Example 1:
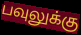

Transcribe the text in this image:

பவுலுக்கு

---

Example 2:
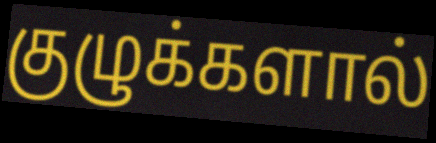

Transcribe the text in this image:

குழுக்களால்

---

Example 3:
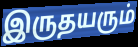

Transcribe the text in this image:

இருதயரும்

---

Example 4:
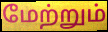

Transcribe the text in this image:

மேற்றும்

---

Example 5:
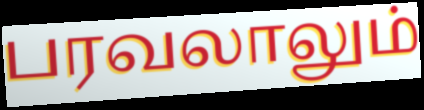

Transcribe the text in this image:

பரவலாலும்